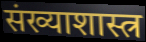
संख्याशास्त्र